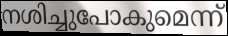
നശിച്ചുപോകുമെന്ന്